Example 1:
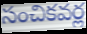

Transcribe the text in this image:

సంచికవర్ల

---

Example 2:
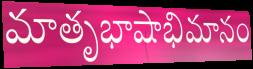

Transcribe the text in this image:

మాతృభాషాభిమానం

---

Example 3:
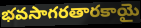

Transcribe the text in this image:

భవసాగరతారకాయై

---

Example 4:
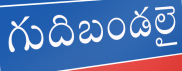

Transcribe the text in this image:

గుదిబండలై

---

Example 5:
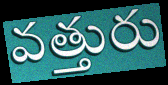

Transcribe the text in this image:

వత్తురు